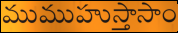
ముముహుస్తాసాం